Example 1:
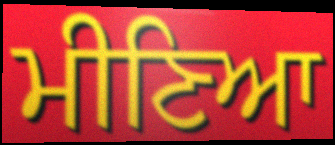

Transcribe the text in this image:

ਮੀਣਿਆ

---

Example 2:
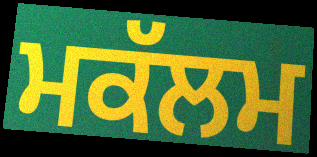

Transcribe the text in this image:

ਮਕੱਲਮ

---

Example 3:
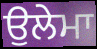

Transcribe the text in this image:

ਉਲੇਮਾ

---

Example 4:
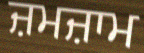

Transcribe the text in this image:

ਜ਼ਮਜ਼ਾਮ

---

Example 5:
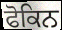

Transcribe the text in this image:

ਫੋਕਿਨ